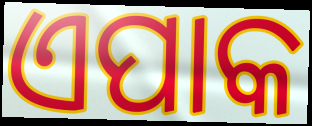
ଏପାକ